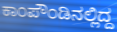
ಕಾಂಪೌಂಡಿನಲ್ಲಿದ್ದ